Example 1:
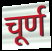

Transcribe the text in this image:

चूर्ण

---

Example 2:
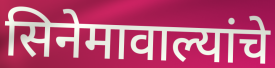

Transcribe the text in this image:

सिनेमावाल्यांचे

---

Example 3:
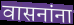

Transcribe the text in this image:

वासनांना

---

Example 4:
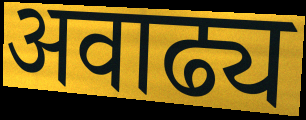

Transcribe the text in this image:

अवाढ्य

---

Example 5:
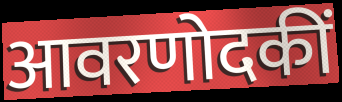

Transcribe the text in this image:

आवरणोदकीं